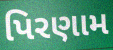
પિરણામ